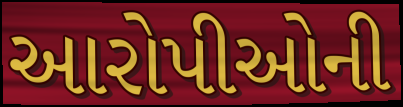
આરોપીઓની